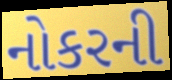
નોકરની